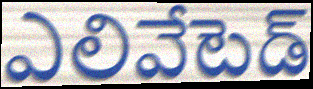
ఎలివేటెడ్